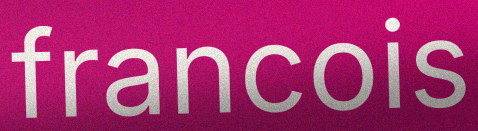
francois